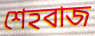
শেহবাজ